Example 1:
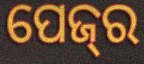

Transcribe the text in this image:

ପେଜ୍‌ର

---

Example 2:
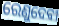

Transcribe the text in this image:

ରେଣୁଦେବୀ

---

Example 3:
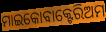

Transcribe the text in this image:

ମାଇକୋବାକ୍ଟେରିଅମ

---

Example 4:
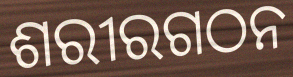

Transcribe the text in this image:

ଶରୀରଗଠନ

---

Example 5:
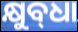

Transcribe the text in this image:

କ୍ଷୁବ୍‌ଧା